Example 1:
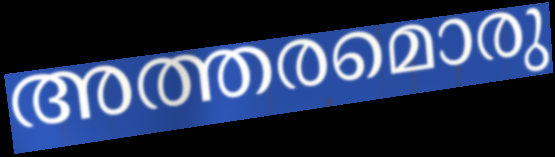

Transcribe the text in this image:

അത്തരമൊരു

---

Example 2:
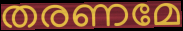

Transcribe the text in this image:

തരണമേ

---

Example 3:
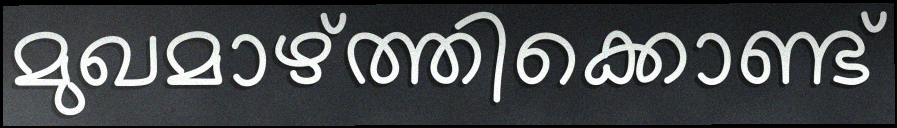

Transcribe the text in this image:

മുഖമാഴ്ത്തിക്കൊണ്ട്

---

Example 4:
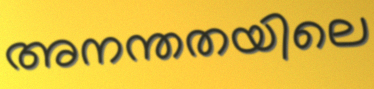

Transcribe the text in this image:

അനന്തതയിലെ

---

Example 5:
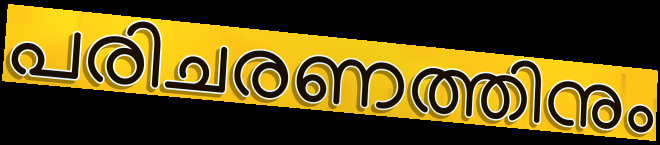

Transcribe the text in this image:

പരിചരണത്തിനും